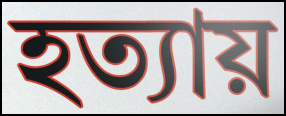
হত্যায়